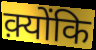
क़्योंकि